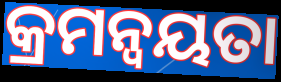
କ୍ରମନ୍ବୟତା